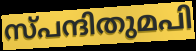
സ്പന്ദിതുമപി